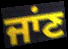
ਜਾਂਣ